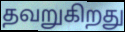
தவறுகிறது